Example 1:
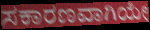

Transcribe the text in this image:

ಸಕಾರಣವಾಗಿಯೇ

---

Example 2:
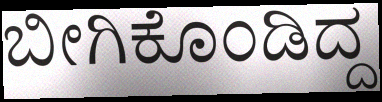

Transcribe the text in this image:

ಬೀಗಿಕೊಂಡಿದ್ದ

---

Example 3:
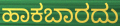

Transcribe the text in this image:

ಹಾಕಬಾರದು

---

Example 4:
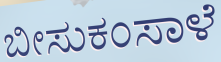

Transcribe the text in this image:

ಬೀಸುಕಂಸಾಳೆ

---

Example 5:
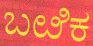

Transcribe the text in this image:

ಬೞಿಕ